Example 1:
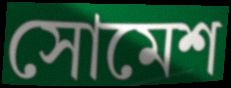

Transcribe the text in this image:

সোমেশ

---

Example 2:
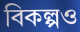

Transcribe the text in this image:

বিকল্পও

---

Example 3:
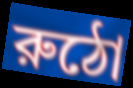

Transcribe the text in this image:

রুঠো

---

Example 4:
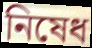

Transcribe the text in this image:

নিষেধ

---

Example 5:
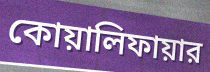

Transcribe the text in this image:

কোয়ালিফায়ার